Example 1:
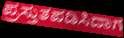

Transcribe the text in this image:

ಪ್ರಸ್ತುತಪಡಿಸಿದಾಗ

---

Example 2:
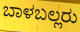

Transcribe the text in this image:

ಬಾಳಬಲ್ಲರು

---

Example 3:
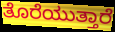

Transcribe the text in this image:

ತೊರೆಯುತ್ತಾರೆ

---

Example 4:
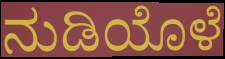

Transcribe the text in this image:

ನುಡಿಯೊಳೆ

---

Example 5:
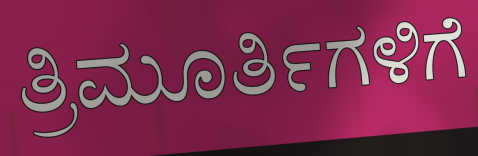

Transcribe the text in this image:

ತ್ರಿಮೂರ್ತಿಗಳಿಗೆ